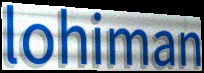
lohiman